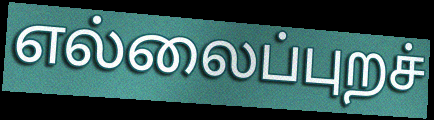
எல்லைப்புறச்